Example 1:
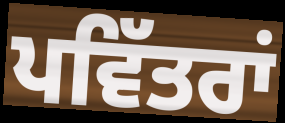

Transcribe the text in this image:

ਪਵਿੱਤਰਾਂ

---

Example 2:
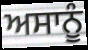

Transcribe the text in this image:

ਅਸਾਨੂੰ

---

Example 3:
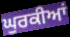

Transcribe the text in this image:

ਘੁਰਕੀਆਂ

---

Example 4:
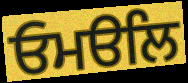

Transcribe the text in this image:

ਓਮੳਲਿ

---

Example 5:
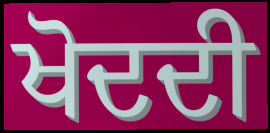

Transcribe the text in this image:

ਖੋਦਦੀ